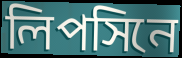
লিপসিনে